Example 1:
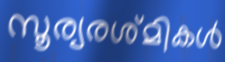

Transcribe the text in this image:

സൂര്യരശ്മികൾ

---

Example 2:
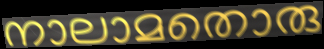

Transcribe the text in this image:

നാലാമതൊരു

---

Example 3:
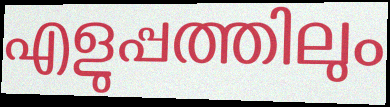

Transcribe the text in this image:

എളുപ്പത്തിലും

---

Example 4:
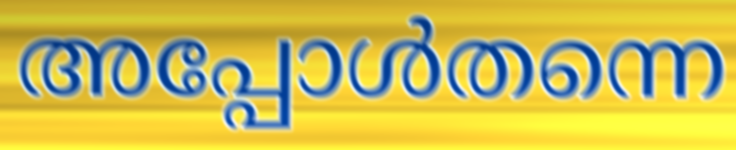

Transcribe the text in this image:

അപ്പോൾതന്നെ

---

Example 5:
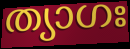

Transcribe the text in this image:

ത്യാഗഃ